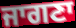
ਜਾਗਣਾ